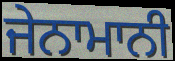
ਜੇਨਾਮਾਨੀ